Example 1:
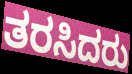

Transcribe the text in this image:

ತರಸಿದರು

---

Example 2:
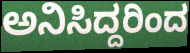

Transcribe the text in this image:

ಅನಿಸಿದ್ದರಿಂದ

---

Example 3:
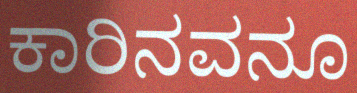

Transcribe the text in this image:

ಕಾರಿನವನೂ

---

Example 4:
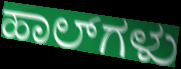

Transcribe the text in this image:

ಹಾಲ್‌ಗಳು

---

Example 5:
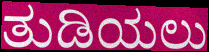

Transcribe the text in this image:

ತುಡಿಯಲು